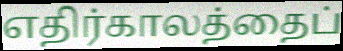
எதிர்காலத்தைப்